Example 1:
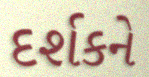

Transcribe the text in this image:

દર્શકને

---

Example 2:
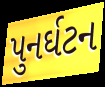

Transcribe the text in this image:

પુનર્ઘટન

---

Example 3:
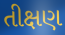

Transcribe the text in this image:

તીક્ષણ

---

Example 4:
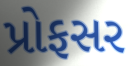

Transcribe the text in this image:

પ્રોફસર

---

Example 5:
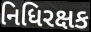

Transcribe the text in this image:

નિધિરક્ષક